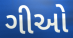
ગીઓ